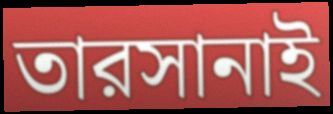
তারসানাই